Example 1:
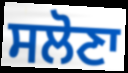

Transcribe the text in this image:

ਸਲੋਣਾ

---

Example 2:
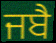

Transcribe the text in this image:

ਜਬੈ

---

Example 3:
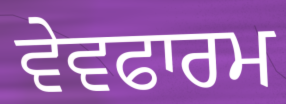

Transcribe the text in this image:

ਵੇਵਫਾਰਮ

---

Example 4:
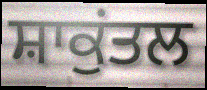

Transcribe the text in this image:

ਸ਼ਾਕੁਂਤਲ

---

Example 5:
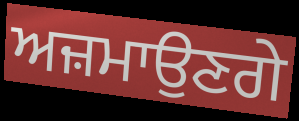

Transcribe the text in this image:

ਅਜ਼ਮਾਉਣਗੇ